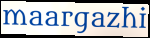
maargazhi